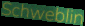
Schweblin